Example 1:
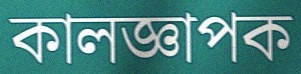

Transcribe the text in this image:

কালজ্ঞাপক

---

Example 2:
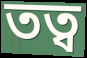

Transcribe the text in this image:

তত্ব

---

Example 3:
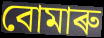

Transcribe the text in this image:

বোমাৰু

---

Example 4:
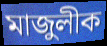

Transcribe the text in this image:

মাজুলীক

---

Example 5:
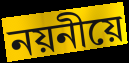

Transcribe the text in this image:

নয়নীয়ে